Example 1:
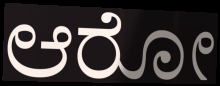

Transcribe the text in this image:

ಆರೋ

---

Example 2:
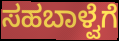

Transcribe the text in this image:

ಸಹಬಾಳ್ವೆಗೆ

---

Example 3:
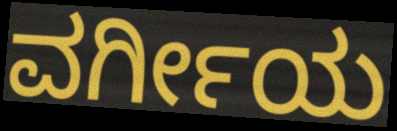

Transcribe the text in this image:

ವರ್ಗೀಯ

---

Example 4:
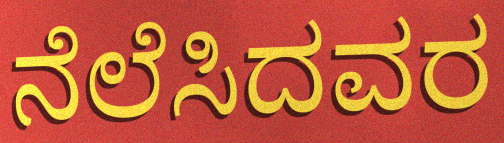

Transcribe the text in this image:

ನೆಲೆಸಿದವರ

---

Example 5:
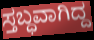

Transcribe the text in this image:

ಸ್ತಬ್ಧವಾಗಿದ್ದ